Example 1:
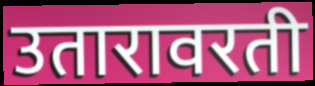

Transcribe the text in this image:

उतारावरती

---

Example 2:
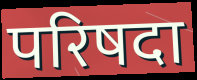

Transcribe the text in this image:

परिषदा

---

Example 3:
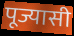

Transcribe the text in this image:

पूज्यासी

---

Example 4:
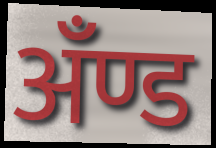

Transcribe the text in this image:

अँण्ड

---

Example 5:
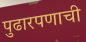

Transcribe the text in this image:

पुढारपणाची